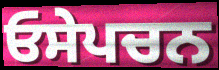
ਓਸੇਪਚਨ